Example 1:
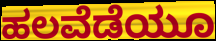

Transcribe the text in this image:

ಹಲವೆಡೆಯೂ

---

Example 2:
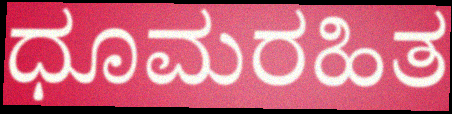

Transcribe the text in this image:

ಧೂಮರಹಿತ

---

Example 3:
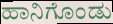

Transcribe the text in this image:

ಹಾನಿಗೊಂಡು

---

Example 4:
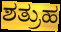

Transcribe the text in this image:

ಶತ್ರುಹ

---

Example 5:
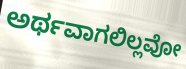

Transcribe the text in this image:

ಅರ್ಥವಾಗಲಿಲ್ಲವೋ